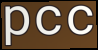
pcc